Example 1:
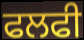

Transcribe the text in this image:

ਫਲਫੀ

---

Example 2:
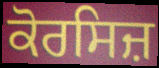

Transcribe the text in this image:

ਕੋਰਸਿਜ਼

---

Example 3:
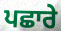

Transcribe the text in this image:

ਪਛਾਰੇ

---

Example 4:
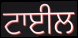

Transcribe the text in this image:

ਟਾਈਲ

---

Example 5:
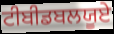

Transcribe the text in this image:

ਟੀਬੀਡਬਲਯੂਏ